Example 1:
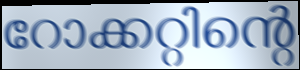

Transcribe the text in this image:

റോക്കറ്റിന്റെ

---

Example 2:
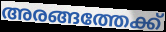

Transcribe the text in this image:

അരങ്ങത്തേക്ക്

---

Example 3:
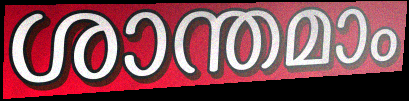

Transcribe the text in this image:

ശാന്തമാം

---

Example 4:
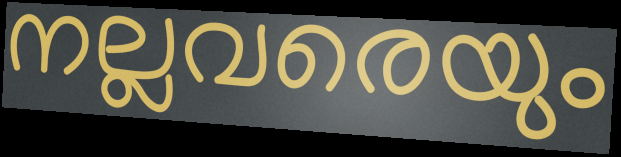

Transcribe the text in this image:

നല്ലവരെയും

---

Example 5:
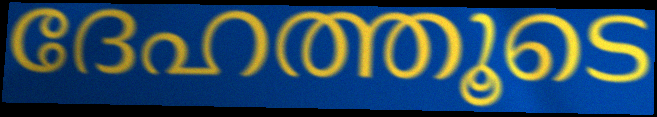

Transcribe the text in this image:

ദേഹത്തൂടെ